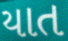
યાત